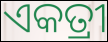
ଏକତ୍ରୀ